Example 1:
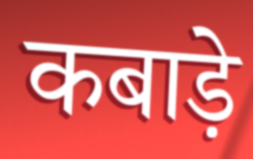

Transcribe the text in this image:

कबाड़े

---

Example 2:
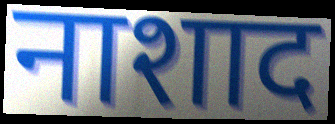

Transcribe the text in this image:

नाशाद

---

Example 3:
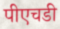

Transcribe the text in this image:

पीएचडी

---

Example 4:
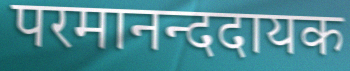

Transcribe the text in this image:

परमानन्ददायक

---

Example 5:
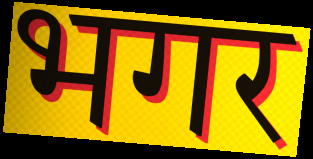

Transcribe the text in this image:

भगर